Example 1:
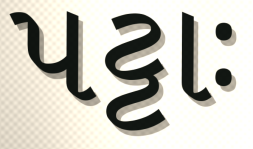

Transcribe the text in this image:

પટ્ટાઃ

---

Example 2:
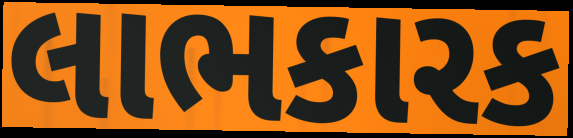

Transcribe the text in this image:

લાભકારક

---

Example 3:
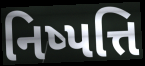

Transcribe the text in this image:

નિષ્પત્તિ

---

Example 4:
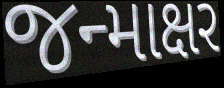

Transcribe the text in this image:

જન્માક્ષર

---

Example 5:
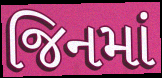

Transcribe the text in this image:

જિનમાં